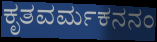
ಕೃತವರ್ಮಕನನಂ